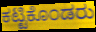
ಕಟ್ಟಿಕೊಂಡರು